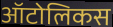
ऑटोलिकस